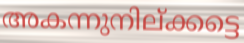
അകന്നുനില്ക്കട്ടെ